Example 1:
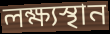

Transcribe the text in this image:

লক্ষ্যস্থান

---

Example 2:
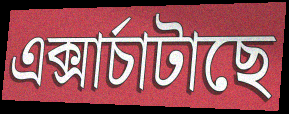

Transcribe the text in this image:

এক্সাৰ্চাটাছে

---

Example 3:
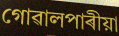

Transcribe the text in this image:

গোৱালপাৰীয়া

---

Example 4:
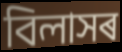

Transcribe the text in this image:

বিলাসৰ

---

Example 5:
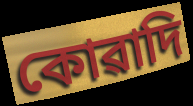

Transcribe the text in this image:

কোৱাদি